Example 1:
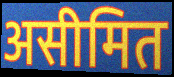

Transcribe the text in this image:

असीमित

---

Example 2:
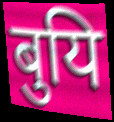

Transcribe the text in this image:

बुयि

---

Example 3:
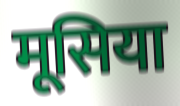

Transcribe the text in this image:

मूसिया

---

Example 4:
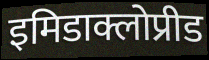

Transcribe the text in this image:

इमिडाक्लोप्रीड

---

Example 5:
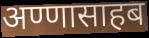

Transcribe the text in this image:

अण्णासाहब